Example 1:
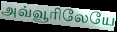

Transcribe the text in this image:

அவ்வூரிலேயே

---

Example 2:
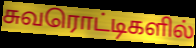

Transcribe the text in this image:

சுவரொட்டிகளில்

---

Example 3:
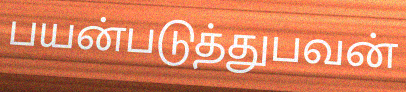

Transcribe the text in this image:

பயன்படுத்துபவன்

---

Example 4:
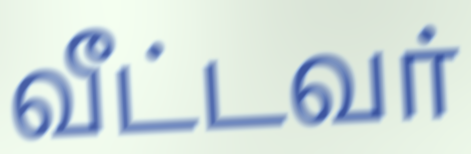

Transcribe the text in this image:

வீட்டவர்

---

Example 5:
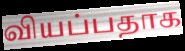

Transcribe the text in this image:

வியப்பதாக